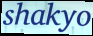
shakyo